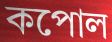
কপোল